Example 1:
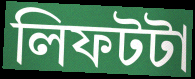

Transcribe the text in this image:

লিফটটা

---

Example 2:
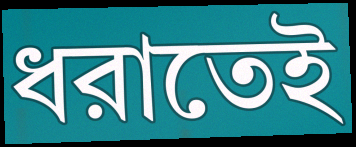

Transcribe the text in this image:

ধরাতেই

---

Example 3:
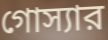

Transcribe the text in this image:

গোস্যার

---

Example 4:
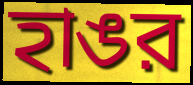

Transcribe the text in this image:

হাঙর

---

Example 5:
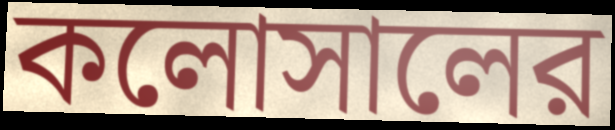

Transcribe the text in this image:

কলোসালের